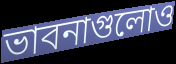
ভাবনাগুলোও